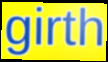
girth